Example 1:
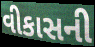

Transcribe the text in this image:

વીકાસની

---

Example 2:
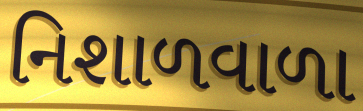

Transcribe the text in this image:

નિશાળવાળા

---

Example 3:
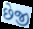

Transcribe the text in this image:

છેજી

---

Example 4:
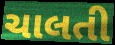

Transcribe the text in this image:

ચાલતી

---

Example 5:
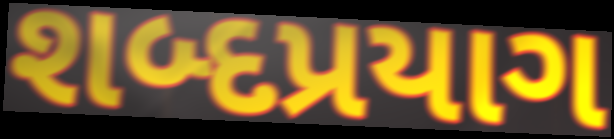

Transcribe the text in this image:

શબ્દપ્રયાગ